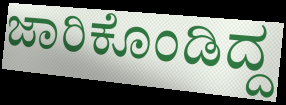
ಜಾರಿಕೊಂಡಿದ್ದ